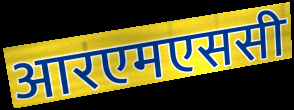
आरएमएससी